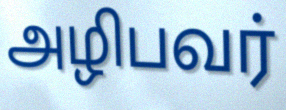
அழிபவர்